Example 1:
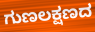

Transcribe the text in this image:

ಗುಣಲಕ್ಷಣದ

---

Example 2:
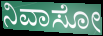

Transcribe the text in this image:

ನಿವಾಸೋ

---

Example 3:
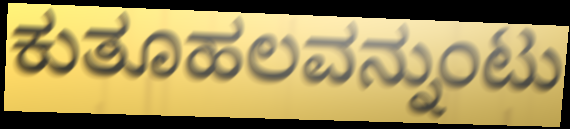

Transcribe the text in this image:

ಕುತೂಹಲವನ್ನುಂಟು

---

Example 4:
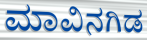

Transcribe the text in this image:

ಮಾವಿನಗಿಡ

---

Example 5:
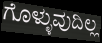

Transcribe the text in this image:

ಗೊಳ್ಳುವುದಿಲ್ಲ